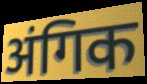
अंगिक